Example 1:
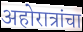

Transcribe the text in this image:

अहोरात्रांचा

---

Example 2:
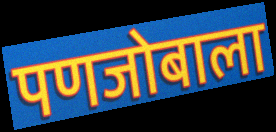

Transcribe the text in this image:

पणजोबाला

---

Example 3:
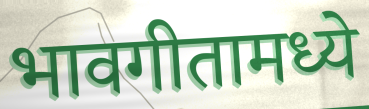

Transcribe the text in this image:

भावगीतामध्ये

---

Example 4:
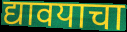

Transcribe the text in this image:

द्यावयाचा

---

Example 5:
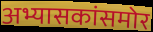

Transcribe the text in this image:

अभ्यासकांसमोर